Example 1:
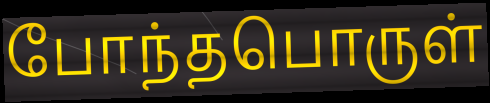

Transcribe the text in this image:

போந்தபொருள்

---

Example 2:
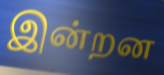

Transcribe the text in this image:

இன்றன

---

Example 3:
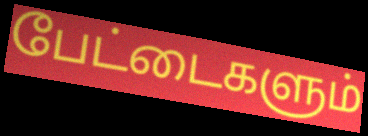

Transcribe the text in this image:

பேட்டைகளும்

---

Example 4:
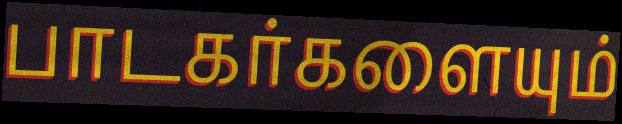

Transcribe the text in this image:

பாடகர்களையும்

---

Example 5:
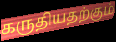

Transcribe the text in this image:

கருதியதற்கும்